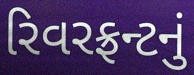
રિવરફ્રન્ટનું